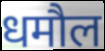
धमौल